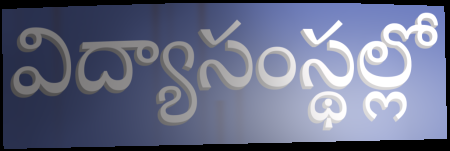
విద్యాసంస్థల్లో